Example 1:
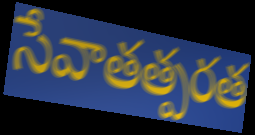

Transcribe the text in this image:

సేవాతత్పరత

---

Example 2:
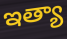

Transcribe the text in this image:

ఇత్యా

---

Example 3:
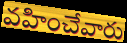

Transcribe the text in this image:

వహించేవారు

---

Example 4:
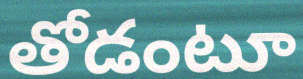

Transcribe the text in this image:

తోడంటూ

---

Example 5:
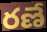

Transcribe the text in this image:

రణే